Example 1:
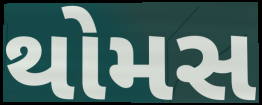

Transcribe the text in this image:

થોમસ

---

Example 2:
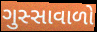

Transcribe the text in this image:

ગુસ્સાવાળો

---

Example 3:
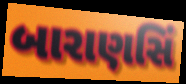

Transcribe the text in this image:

બારાણસિં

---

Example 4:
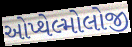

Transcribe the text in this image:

ઓપ્થેલ્મોલોજી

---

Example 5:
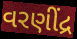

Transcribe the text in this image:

વરણીંદ્ર